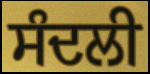
ਸੰਦਲੀ